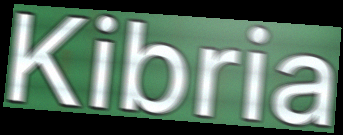
Kibria